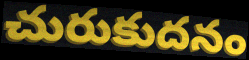
చురుకుదనం